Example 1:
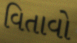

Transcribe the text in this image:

વિતાવો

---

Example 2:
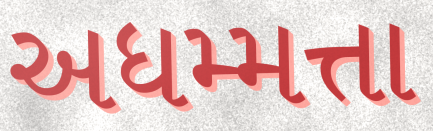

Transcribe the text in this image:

અધમ્મત્તા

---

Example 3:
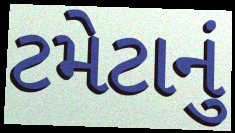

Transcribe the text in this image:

ટમેટાનું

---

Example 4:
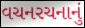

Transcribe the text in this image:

વચનરચનાનું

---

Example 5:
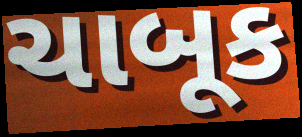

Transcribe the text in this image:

ચાબૂક